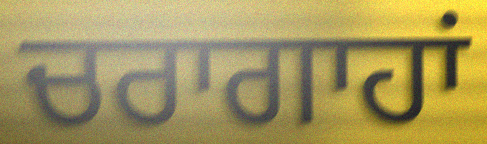
ਚਰਾਗਾਹਾਂ